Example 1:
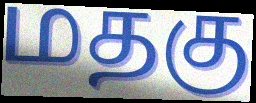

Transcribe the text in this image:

மதகு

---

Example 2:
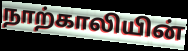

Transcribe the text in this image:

நாற்காலியின்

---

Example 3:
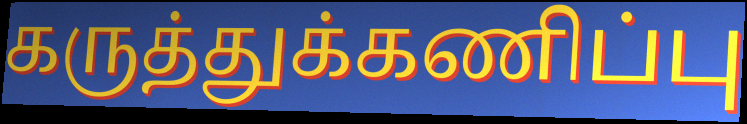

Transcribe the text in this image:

கருத்துக்கணிப்பு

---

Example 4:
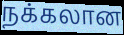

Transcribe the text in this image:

நக்கலான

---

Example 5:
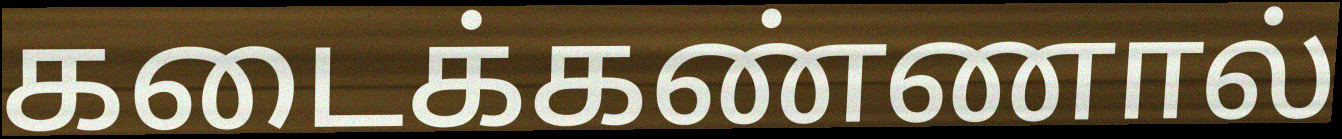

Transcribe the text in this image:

கடைக்கண்ணால்